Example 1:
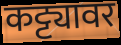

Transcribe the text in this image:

कट्ट्यावर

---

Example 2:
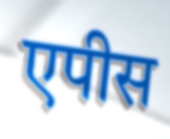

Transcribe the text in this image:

एपीस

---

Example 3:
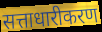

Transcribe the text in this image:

सत्ताधारीकरण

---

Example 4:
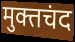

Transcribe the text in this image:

मुक्तचंद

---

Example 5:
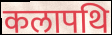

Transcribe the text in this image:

कलापथि